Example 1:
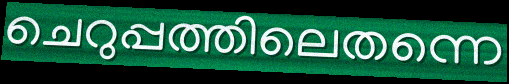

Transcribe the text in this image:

ചെറുപ്പത്തിലെതന്നെ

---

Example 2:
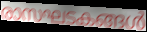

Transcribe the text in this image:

രാസഘടകങ്ങൾ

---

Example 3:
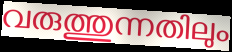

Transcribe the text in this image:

വരുത്തുന്നതിലും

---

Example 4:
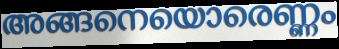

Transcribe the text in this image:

അങ്ങനെയൊരെണ്ണം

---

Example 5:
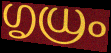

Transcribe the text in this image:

ഗൃധ്രം